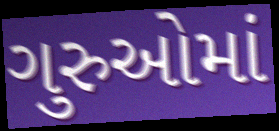
ગુરુઓમાં